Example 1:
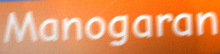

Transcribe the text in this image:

Manogaran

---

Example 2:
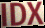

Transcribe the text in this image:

IDX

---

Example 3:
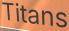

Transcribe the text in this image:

Titans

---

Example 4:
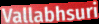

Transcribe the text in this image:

Vallabhsuri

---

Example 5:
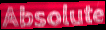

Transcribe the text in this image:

Absolute